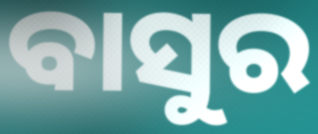
ବାସୁର